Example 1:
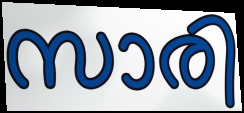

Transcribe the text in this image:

സാരി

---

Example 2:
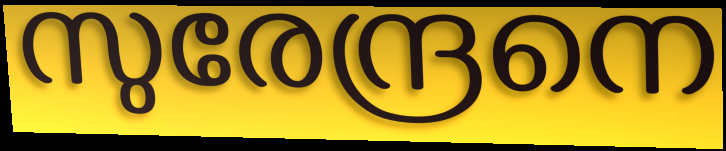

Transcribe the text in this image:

സുരേന്ദ്രനെ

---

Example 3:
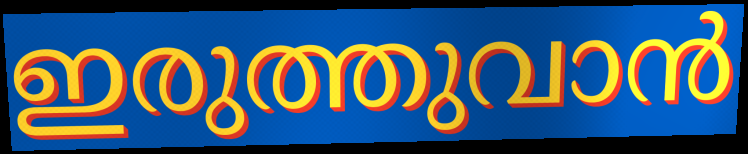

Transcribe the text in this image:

ഇരുത്തുവാൻ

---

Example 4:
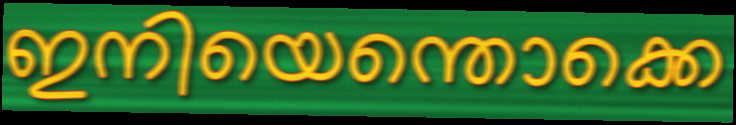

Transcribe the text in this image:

ഇനിയെന്തൊക്കെ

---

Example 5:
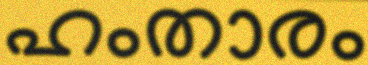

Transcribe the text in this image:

ഹംതാരം